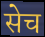
सेच